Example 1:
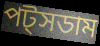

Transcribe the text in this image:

পট্‌সডাম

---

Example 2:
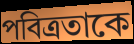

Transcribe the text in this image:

পবিত্রতাকে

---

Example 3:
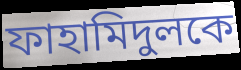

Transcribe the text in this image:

ফাহামিদুলকে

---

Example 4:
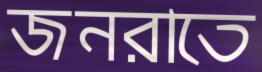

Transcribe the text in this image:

জনরাতে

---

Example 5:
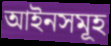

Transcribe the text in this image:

আইনসমূহ